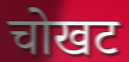
चोखट